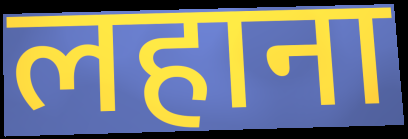
लहाना